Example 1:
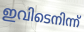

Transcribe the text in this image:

ഇവിടെനിന്ന്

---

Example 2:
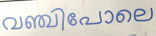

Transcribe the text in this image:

വഞ്ചിപോലെ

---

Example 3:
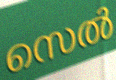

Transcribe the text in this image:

സെൽ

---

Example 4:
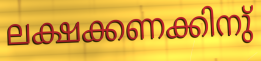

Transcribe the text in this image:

ലക്ഷക്കണക്കിനു്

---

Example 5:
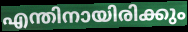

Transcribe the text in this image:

എന്തിനായിരിക്കും